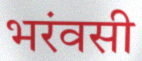
भरंवसी